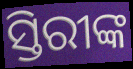
ସ୍ତିରୀଙ୍କ